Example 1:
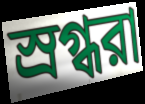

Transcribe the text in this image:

স্রগ্ধরা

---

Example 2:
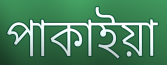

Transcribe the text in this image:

পাকাইয়া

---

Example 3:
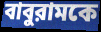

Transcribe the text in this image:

বাবুরামকে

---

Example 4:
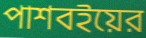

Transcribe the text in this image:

পাশবইয়ের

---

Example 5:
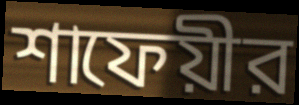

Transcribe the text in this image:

শাফেয়ীর